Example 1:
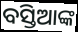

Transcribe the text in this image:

ବସ୍ତିଆଙ୍କ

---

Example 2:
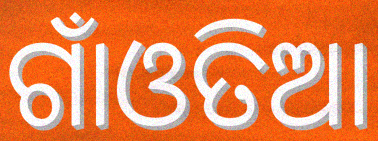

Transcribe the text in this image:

ଗାଁଓତିଆ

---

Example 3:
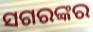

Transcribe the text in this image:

ସଗରଙ୍କର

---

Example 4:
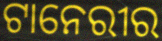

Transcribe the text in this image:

ଟାନେରୀର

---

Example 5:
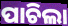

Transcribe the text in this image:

ପାଚିଲା